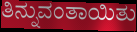
ತಿನ್ನುವಂತಾಯಿತು